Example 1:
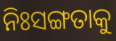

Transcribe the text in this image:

ନିଃସଙ୍ଗତାକୁ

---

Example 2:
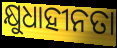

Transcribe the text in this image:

କ୍ଷୁଧାହୀନତା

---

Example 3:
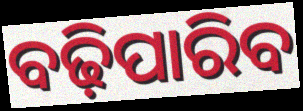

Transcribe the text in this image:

ବଢ଼ିପାରିବ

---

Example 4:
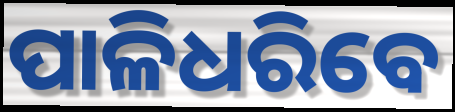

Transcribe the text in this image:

ପାଳିଧରିବେ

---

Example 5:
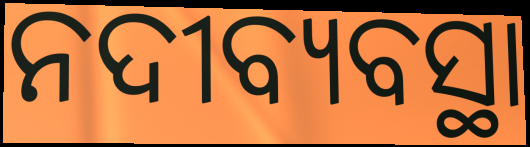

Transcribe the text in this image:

ନଦୀବ୍ୟବସ୍ଥା